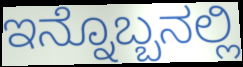
ಇನ್ನೊಬ್ಬನಲ್ಲಿ